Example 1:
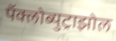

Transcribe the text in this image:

पॅक्लोब्युट्राझोल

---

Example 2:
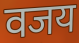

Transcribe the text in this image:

वजय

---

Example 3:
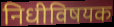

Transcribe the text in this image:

निधीविषयक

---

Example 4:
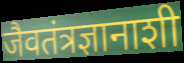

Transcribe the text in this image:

जैवतंत्रज्ञानाशी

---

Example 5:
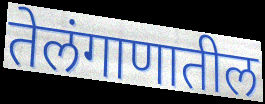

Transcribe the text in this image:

तेलंगाणातील